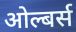
ओल्बर्स